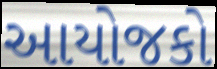
આયોજકો